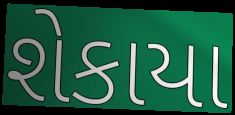
શેકાયા